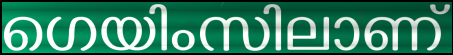
ഗെയിംസിലാണ്